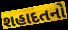
શહાદતનો